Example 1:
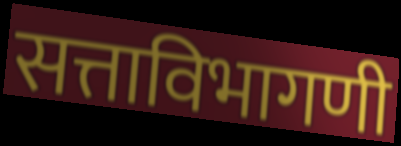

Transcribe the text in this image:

सत्ताविभागणी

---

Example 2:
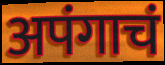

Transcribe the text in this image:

अपंगाचं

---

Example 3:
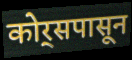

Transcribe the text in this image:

कोर्सपासून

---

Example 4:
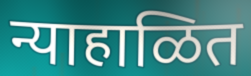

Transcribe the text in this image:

न्याहाळित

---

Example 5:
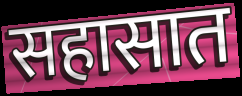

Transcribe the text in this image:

सहासात